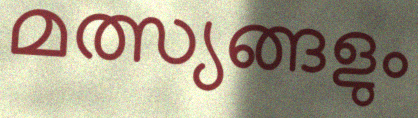
മത്സ്യങ്ങളും